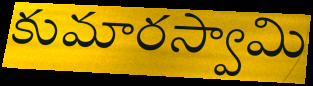
కుమారస్వామి